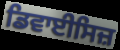
ਡਿਵਾਈਸਿਜ਼